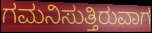
ಗಮನಿಸುತ್ತಿರುವಾಗ